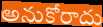
అనుకోరాదు